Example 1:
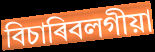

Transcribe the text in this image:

বিচাৰিবলগীয়া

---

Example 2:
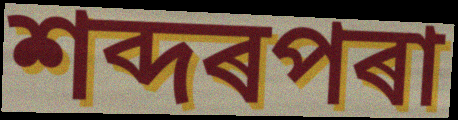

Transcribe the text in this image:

শব্দৰপৰা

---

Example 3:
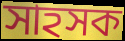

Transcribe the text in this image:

সাহসক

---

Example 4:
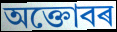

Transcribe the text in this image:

অক্তোবৰ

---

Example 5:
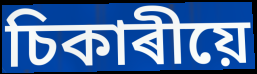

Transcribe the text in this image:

চিকাৰীয়ে